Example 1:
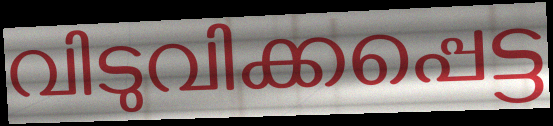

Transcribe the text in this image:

വിടുവിക്കപ്പെട്ട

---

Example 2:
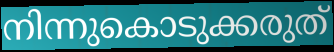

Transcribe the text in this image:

നിന്നുകൊടുക്കരുത്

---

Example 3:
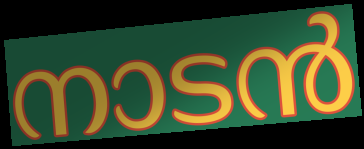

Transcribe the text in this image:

നാടൻ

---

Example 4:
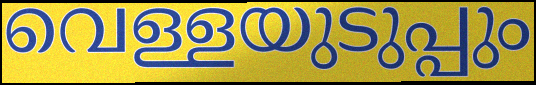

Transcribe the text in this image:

വെള്ളയുടുപ്പും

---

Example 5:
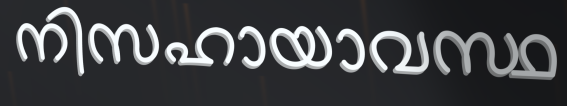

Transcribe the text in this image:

നിസഹായാവസ്ഥ